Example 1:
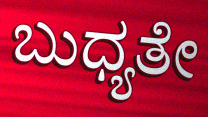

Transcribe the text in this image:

ಬುಧ್ಯತೇ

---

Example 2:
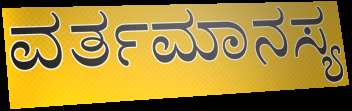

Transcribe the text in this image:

ವರ್ತಮಾನಸ್ಯ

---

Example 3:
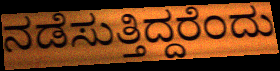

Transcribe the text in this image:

ನಡೆಸುತ್ತಿದ್ದರೆಂದು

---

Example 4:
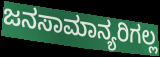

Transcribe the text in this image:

ಜನಸಾಮಾನ್ಯರಿಗಲ್ಲ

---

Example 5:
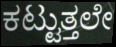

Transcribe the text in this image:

ಕಟ್ಟುತ್ತಲೇ